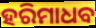
ହରିମାଧବ